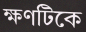
ক্ষণটিকে